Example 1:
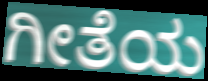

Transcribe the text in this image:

ಗೀತೆಯ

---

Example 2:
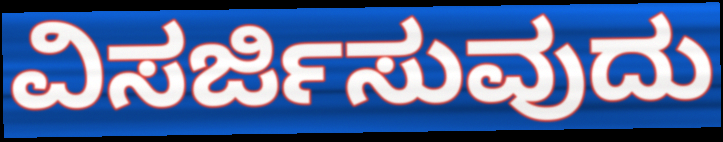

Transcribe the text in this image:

ವಿಸರ್ಜಿಸುವುದು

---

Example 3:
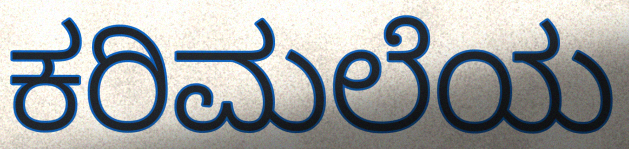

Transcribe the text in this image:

ಕರಿಮಲೆಯ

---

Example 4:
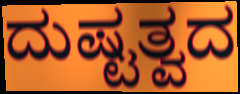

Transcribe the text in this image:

ದುಷ್ಟತ್ವದ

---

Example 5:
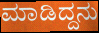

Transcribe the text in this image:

ಮಾಡಿದ್ದನು